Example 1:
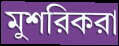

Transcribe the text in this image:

মুশরিকরা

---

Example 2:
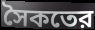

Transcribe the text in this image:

সৈকতের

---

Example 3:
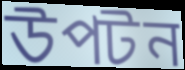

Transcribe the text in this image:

উপটন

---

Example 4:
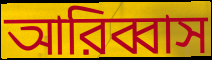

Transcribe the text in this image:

আরিব্বাস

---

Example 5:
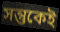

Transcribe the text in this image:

সন্তুকেই